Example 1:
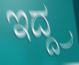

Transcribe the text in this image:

ಇದ್ದ್ರ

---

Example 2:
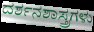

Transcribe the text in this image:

ದರ್ಶನಶಾಸ್ತ್ರಗಳು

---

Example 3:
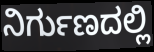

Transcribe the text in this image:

ನಿರ್ಗುಣದಲ್ಲಿ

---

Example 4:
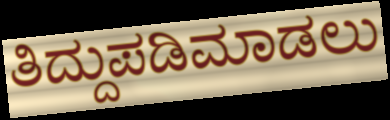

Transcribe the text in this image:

ತಿದ್ದುಪಡಿಮಾಡಲು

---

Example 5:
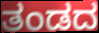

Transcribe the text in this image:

ತಂಡದ